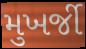
મુખર્જી